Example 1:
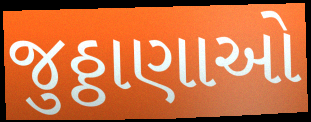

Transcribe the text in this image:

જુઠ્ઠાણાઓ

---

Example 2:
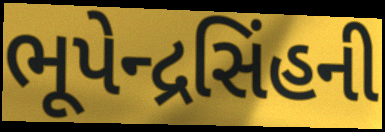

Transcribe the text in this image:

ભૂપેન્દ્રસિંહની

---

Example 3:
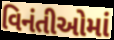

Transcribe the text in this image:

વિનંતીઓમાં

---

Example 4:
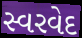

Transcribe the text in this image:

સ્વરવેદ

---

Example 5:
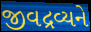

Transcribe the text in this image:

જીવદ્રવ્યને